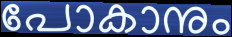
പോകാനും